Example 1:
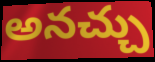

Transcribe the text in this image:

అనచ్చు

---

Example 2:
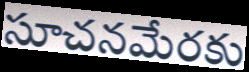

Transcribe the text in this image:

సూచనమేరకు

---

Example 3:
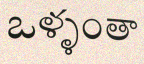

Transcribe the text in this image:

ఒళ్ళంతా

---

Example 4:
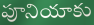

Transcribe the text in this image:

పూనియాకు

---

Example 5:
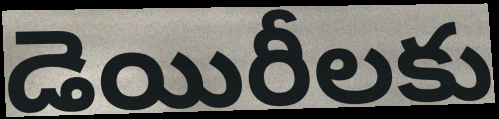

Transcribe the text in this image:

డెయిరీలకు